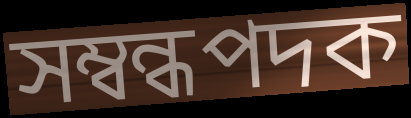
সম্বন্ধপদক